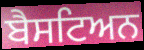
ਬੈਸਟਿਅਨ